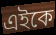
এইকে